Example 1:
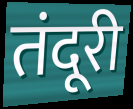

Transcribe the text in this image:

तंदूरी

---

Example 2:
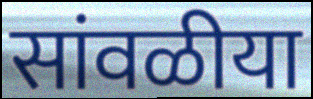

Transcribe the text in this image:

सांवळीया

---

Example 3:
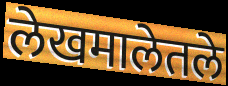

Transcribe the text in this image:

लेखमालेतले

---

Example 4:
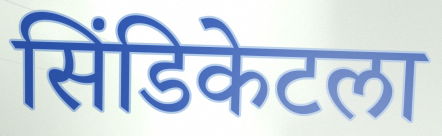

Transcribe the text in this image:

सिंडिकेटला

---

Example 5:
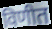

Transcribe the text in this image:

विणीत